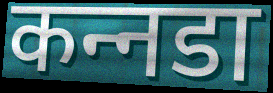
कन्नडा